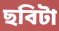
ছবিটা